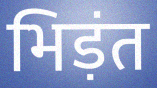
भिड़ंत